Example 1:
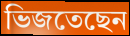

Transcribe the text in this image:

ভিজতেছেন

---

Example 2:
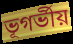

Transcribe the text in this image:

ভূগর্ভীয়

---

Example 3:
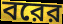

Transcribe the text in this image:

বরের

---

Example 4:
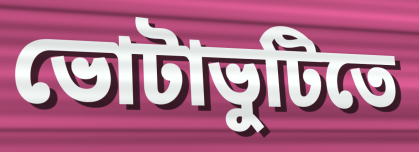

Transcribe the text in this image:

ভোটাভুটিতে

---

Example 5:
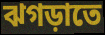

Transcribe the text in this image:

ঝগড়াতে